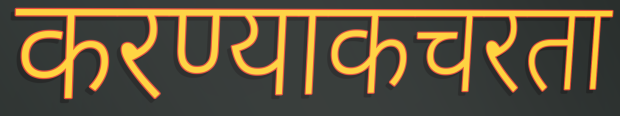
करण्याकचरता